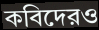
কবিদেরও